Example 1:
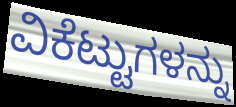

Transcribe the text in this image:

ವಿಕೆಟ್ಟುಗಳನ್ನು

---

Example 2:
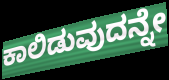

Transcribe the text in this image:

ಕಾಲಿಡುವುದನ್ನೇ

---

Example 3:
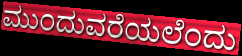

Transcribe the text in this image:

ಮುಂದುವರೆಯಲೆಂದು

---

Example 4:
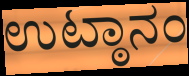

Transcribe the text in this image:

ಉಟ್ಠಾನಂ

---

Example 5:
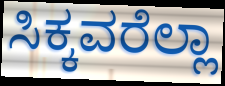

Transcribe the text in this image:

ಸಿಕ್ಕವರೆಲ್ಲಾ